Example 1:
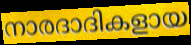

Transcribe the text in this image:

നാരദാദികളായ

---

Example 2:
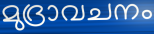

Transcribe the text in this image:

മുദ്രാവചനം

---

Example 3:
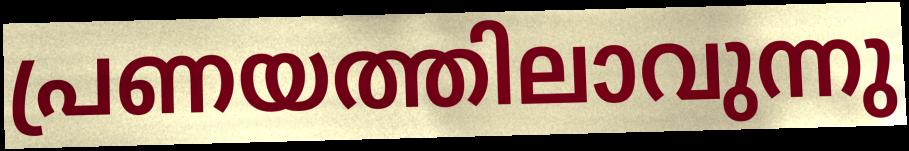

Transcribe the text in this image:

പ്രണയത്തിലാവുന്നു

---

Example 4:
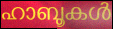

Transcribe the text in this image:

ഹാബൂകൾ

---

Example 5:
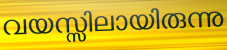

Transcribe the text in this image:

വയസ്സിലായിരുന്നു